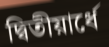
দ্বিতীয়ার্ধে